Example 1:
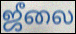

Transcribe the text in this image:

ஜீலை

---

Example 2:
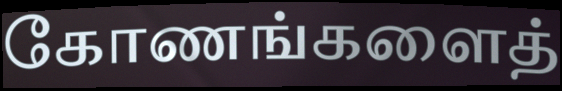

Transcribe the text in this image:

கோணங்களைத்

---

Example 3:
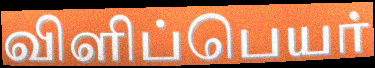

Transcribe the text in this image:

விளிப்பெயர்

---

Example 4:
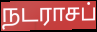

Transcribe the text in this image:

நடராசப்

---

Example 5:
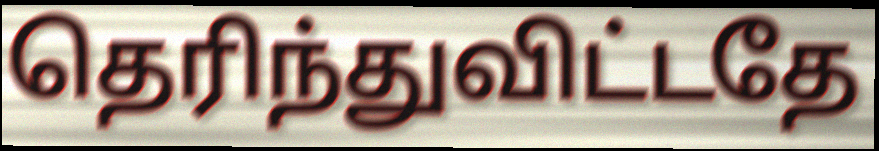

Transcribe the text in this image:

தெரிந்துவிட்டதே